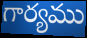
గార్యము